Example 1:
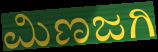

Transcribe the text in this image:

ಮಿಣಜಗಿ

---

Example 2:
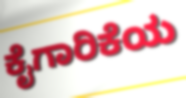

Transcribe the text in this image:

ಕೈಗಾರಿಕೆಯ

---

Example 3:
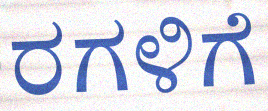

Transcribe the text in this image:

ರಗಳಿಗೆ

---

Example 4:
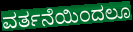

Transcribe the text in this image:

ವರ್ತನೆಯಿಂದಲೂ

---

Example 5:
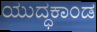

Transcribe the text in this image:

ಯುದ್ಧಕಾಂಡ